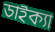
ডাইক্যা